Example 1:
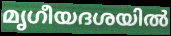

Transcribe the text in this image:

മൃഗീയദശയിൽ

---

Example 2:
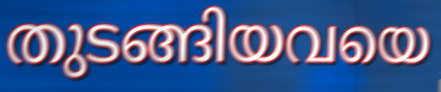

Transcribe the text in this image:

തുടങ്ങിയവയെ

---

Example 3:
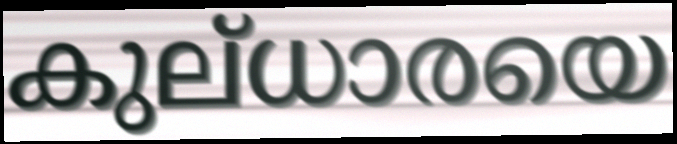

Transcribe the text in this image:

കുല്ധാരയെ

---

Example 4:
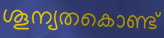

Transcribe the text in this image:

ശൂന്യതകൊണ്ട്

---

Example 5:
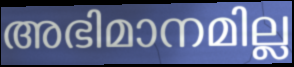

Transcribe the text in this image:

അഭിമാനമില്ല